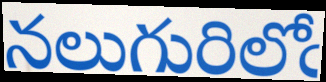
నలుగురిలోఁ